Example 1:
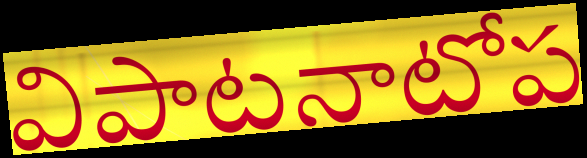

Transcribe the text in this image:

విపాటనాటోప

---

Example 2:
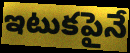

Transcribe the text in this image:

ఇటుకపైనే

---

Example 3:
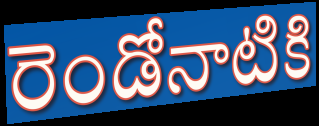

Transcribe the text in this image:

రెండోనాటికి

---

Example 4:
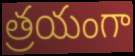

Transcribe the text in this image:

త్రయంగా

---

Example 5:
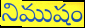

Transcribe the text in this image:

నిముషం